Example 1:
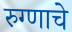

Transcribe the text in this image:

रुग्णाचे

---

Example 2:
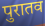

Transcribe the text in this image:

पुरातव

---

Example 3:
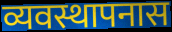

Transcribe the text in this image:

व्यवस्थापनास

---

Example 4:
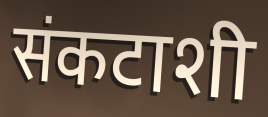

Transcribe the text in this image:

संकटाशी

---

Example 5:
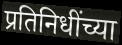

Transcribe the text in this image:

प्रतिनिधींच्या